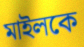
মাইলকে